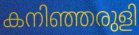
കനിഞ്ഞരുളി